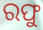
ରଫୁ